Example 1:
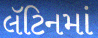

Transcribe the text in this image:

લૅટિનમાં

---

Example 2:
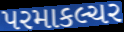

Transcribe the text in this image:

પરમાકલ્ચર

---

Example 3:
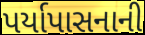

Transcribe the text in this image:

પર્યાપાસનાની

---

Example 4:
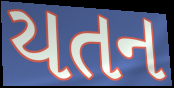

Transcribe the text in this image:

યતન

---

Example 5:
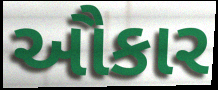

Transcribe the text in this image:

ઔકાર